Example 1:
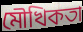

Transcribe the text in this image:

মৌখিকতা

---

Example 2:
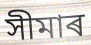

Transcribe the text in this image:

সীমাৰ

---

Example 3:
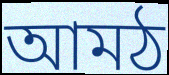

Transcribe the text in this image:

আমঠ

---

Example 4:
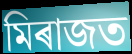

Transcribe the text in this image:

মিৰাজত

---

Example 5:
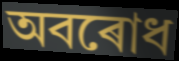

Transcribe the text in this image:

অবৰোধ